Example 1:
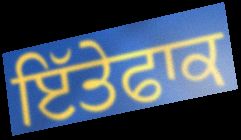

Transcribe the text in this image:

ਇੱਤੇਫਾਕ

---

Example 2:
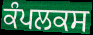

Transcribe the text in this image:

ਕੰਪਲਕਸ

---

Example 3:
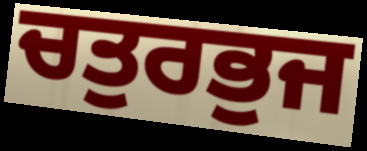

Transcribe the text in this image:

ਚਤੁਰਭੁਜ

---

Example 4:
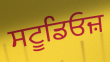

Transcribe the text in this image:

ਸਟੂਡਿਓਜ਼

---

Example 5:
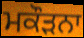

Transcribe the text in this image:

ਮਕੌੜਨਾ